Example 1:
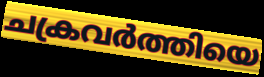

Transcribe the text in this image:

ചക്രവർത്തിയെ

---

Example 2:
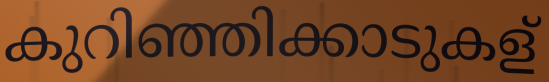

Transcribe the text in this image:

കുറിഞ്ഞിക്കാടുകള്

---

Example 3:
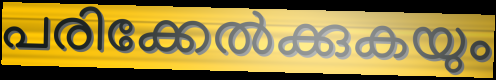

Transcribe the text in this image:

പരിക്കേൽക്കുകയും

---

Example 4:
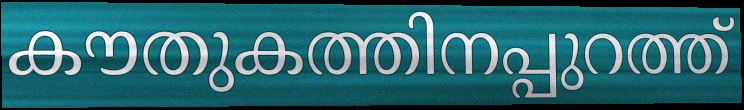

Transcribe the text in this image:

കൗതുകത്തിനപ്പുറത്ത്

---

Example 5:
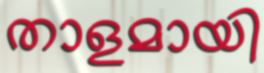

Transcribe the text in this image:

താളമായി